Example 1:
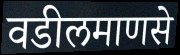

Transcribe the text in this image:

वडीलमाणसे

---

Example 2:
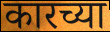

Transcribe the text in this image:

कारच्या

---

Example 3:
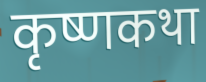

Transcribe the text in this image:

कृष्णकथा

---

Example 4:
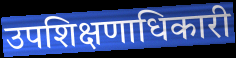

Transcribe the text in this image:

उपशिक्षणाधिकारी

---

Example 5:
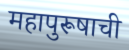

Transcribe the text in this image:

महापुरूषाची